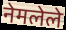
नेमलेले